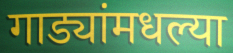
गाड्यांमधल्या